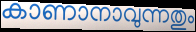
കാണാനാവുന്നതും